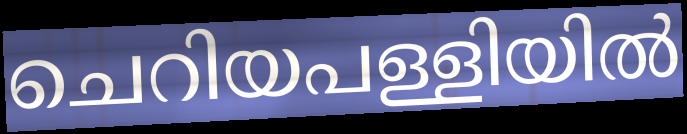
ചെറിയപള്ളിയിൽ